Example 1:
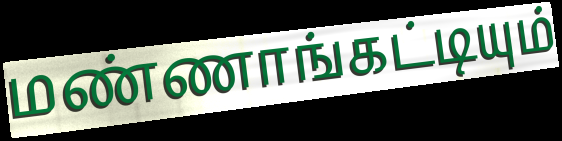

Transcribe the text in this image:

மண்ணாங்கட்டியும்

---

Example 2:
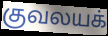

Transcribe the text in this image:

குவலயக்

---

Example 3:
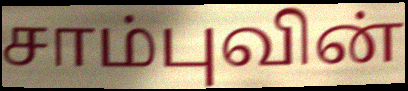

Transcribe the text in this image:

சாம்புவின்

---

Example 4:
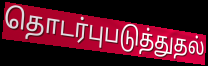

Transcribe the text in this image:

தொடர்புபடுத்துதல்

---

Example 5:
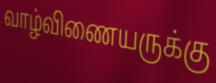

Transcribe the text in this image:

வாழ்விணையருக்கு